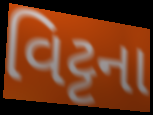
વિટ્ટના